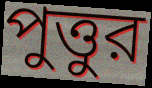
পুত্তুর